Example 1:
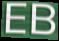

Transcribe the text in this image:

EB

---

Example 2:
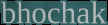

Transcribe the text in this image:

bhochak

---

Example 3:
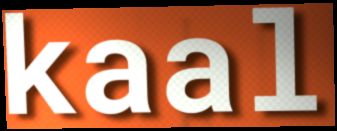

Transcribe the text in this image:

kaal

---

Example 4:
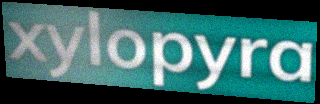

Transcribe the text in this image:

xylopyra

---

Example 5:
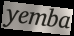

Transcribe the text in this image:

yemba